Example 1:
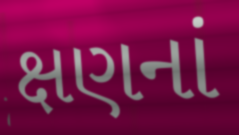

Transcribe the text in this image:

ક્ષણનાં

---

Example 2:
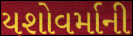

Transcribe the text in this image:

યશોવર્માની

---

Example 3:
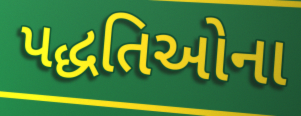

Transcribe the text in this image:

પદ્ધતિઓના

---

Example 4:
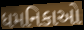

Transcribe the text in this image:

ધમનિકાઓ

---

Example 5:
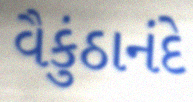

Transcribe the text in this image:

વૈકુંઠાનંદે